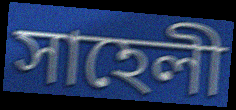
সাহেলী